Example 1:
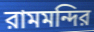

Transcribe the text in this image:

রামমন্দির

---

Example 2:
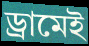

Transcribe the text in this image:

ড্রামেই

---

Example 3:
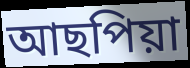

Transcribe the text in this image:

আছপিয়া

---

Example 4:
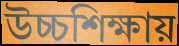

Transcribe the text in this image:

উচ্চশিক্ষায়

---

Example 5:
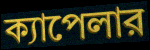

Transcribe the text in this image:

ক্যাপেলার